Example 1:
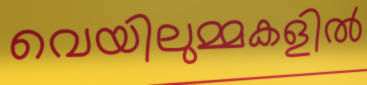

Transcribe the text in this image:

വെയിലുമ്മകളിൽ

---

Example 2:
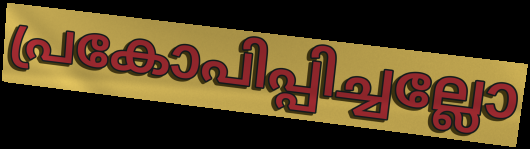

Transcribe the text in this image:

പ്രകോപിപ്പിച്ചല്ലോ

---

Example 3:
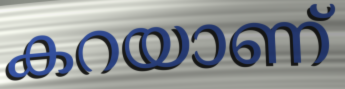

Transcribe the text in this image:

കറയാണ്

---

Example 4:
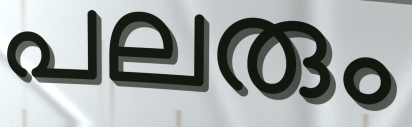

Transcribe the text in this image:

പലരും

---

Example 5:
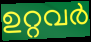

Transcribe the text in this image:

ഉറ്റവർ